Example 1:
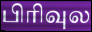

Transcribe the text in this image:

பிரிவுல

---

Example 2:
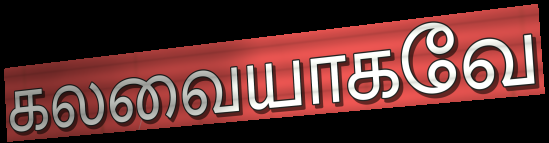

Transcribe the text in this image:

கலவையாகவே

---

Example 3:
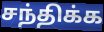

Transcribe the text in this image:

சந்திக்க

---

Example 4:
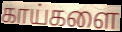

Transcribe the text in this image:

காய்களை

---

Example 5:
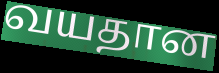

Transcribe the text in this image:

வயதான